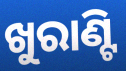
ଖୁରାଣ୍ଟି